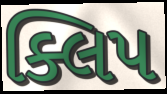
ક્લિપ